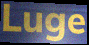
Luge